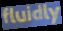
fluidly